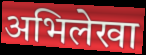
अभिलेखा